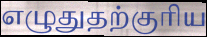
எழுதுதற்குரிய